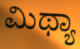
ಮಿಥ್ಯಾ